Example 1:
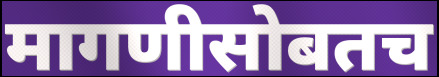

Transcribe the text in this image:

मागणीसोबतच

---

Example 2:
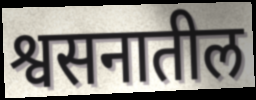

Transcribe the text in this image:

श्वसनातील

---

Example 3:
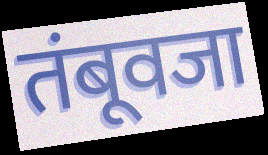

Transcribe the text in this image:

तंबूवजा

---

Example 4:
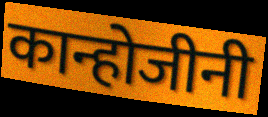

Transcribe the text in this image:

कान्होजीनी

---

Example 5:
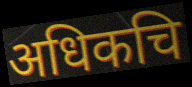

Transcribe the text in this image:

अधिकचि